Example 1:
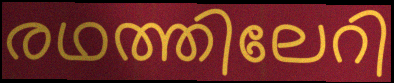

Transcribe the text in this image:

രഥത്തിലേറി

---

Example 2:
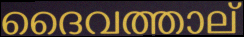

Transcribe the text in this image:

ദൈവത്താല്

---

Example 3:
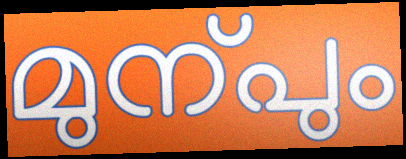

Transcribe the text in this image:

മുന്പും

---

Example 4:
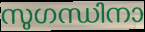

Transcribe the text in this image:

സുഗന്ധിനാ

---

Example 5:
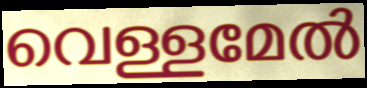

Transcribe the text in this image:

വെള്ളമേൽ